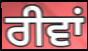
ਰੀਵਾਂ